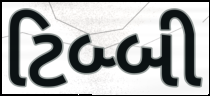
ટિબ્બી